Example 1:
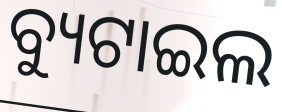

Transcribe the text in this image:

ବ୍ୟୁଟାଇଲ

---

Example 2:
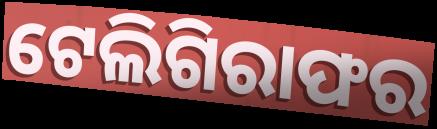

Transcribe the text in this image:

ଟେଲିଗିରାଫର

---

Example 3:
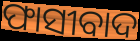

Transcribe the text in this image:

ଫାସୀବାଦ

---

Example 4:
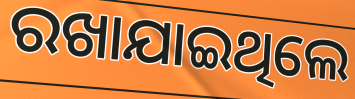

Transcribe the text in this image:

ରଖାଯାଇଥିଲେ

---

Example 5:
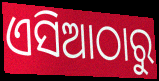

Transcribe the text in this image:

ଏସିଆଠାରୁ